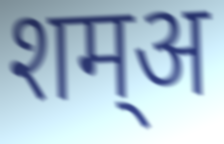
शम्अ